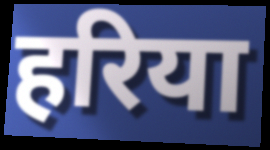
हरिया